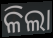
ଳିଲା